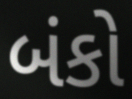
બંકો